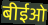
बीईओ